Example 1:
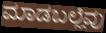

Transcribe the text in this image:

ಮಾಡಬಲ್ಲೆವು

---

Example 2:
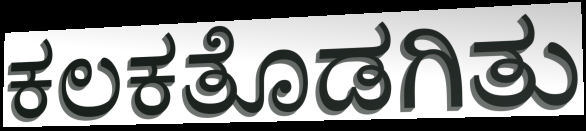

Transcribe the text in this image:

ಕಲಕತೊಡಗಿತು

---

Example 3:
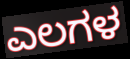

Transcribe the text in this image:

ಎಲಗಳ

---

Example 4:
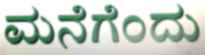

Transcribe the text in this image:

ಮನೆಗೆಂದು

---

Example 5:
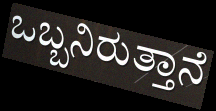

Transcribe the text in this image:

ಒಬ್ಬನಿರುತ್ತಾನೆ